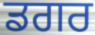
ਡਗਰ